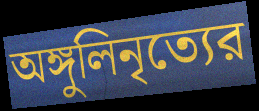
অঙ্গুলিনৃত্যের